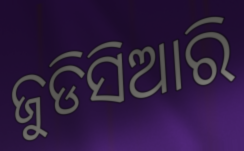
ଜୁଡିସିଆରି